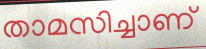
താമസിച്ചാണ്